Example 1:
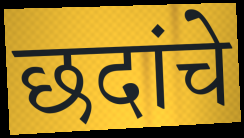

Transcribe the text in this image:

छदांचे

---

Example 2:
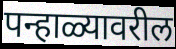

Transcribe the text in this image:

पन्हाळ्यावरील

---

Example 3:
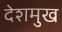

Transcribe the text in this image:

देशमुख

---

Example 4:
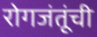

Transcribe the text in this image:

रोगजंतूंची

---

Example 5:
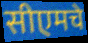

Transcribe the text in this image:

सीएमचे